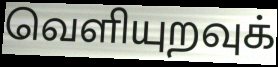
வெளியுறவுக்